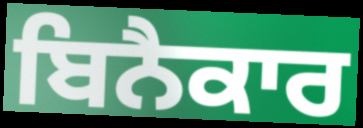
ਬਿਨੈਕਾਰ